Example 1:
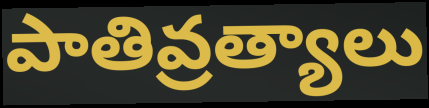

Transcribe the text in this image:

పాతివ్రత్యాలు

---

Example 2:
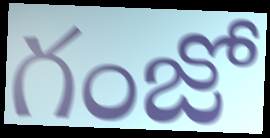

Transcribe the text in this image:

గంజో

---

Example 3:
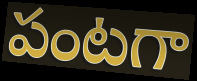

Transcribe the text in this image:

పంటగా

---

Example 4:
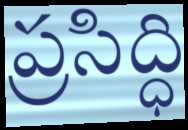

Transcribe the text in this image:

ప్రసిద్ధి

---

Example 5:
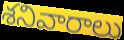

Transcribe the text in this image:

శనివారాలు